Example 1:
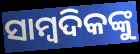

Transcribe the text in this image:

ସାମ୍ବଦିକଙ୍କୁ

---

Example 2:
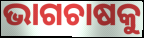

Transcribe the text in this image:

ଭାଗଚାଷକୁ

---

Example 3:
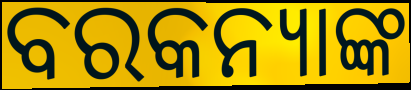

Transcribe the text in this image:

ବରକନ୍ୟାଙ୍କ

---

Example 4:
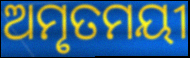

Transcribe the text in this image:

ଅମୃତମୟୀ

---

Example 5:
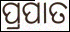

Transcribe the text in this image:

ପ୍ରପାତ